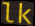
lk